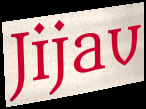
Jijau